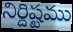
నిర్దిష్టము